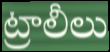
ట్రాలీలు